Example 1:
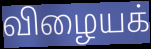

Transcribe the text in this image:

விழையக்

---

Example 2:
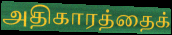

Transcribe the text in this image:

அதிகாரத்தைக்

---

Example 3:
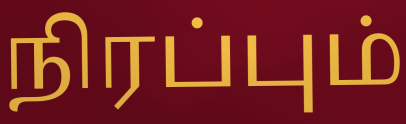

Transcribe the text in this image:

நிரப்பும்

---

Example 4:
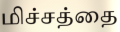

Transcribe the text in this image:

மிச்சத்தை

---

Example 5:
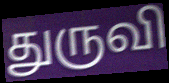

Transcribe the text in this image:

துருவி